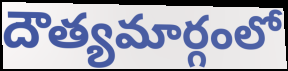
దౌత్యమార్గంలో